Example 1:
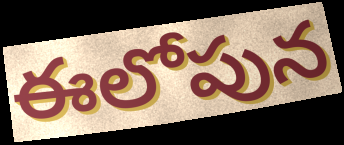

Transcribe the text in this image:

ఈలోపున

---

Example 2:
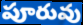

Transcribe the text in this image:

పూరువు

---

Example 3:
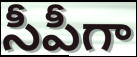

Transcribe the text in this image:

సీపీగా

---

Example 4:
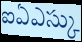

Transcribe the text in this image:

ఐఏఎస్కు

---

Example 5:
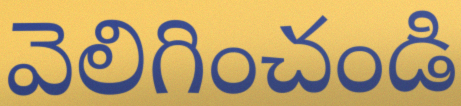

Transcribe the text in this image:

వెలిగించండి